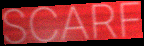
SCARF